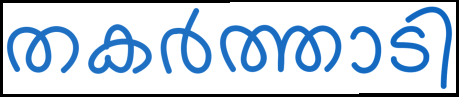
തകർത്താടി